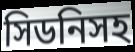
সিডনিসহ